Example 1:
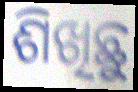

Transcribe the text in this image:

ଶିଖିଛୁ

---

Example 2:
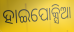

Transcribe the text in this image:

ହାଇପୋକ୍ସିଆ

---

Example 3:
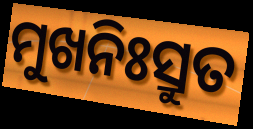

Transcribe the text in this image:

ମୁଖନିଃସ୍ରୁତ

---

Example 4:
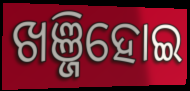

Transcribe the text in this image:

ଖଞ୍ଜିହୋଇ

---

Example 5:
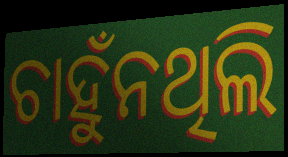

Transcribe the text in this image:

ଚାହୁଁନଥିଲି